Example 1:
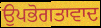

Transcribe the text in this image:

ਉਪਭੋਗਤਾਵਾਦ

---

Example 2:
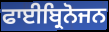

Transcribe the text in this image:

ਫਾਈਬ੍ਰਿਨੋਜਨ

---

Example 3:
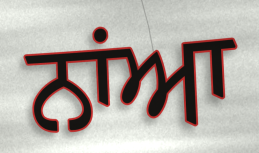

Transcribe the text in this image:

ਨਾਂਆ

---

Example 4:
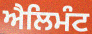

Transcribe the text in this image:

ਐਲਿਮੰਟ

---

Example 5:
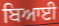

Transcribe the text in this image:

ਬਿਆਈ